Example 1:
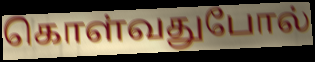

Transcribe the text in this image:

கொள்வதுபோல்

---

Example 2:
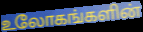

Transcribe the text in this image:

உலோகங்களின்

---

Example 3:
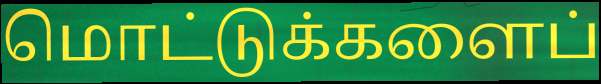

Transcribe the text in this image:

மொட்டுக்களைப்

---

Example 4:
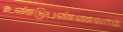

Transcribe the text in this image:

உண்டுபண்ணலாம்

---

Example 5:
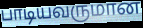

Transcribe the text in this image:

பாடியவருமான